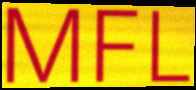
MFL